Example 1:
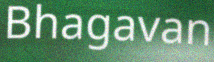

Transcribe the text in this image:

Bhagavan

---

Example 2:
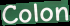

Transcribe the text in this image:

Colon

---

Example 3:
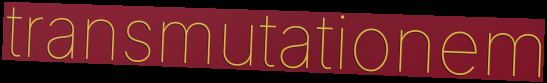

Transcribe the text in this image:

transmutationem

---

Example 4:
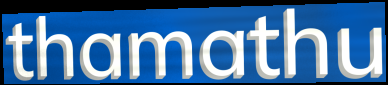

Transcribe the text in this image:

thamathu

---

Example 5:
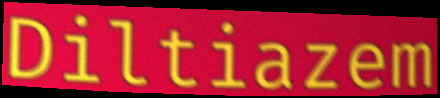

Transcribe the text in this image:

Diltiazem